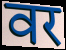
वर